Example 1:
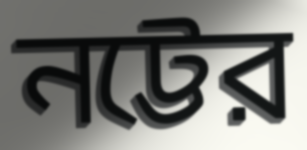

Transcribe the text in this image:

নট্টের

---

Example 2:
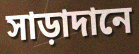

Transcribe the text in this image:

সাড়াদানে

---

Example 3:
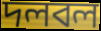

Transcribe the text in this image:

দলবল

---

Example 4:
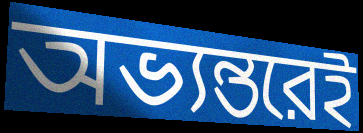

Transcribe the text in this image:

অভ্যন্তরেই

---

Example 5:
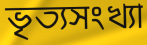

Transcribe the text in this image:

ভৃত্যসংখ্যা